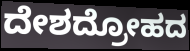
ದೇಶದ್ರೋಹದ